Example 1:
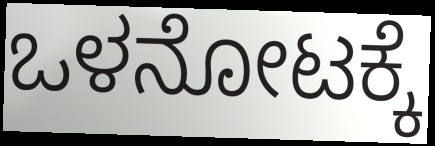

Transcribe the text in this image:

ಒಳನೋಟಕ್ಕೆ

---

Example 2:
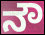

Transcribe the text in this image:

ನೌ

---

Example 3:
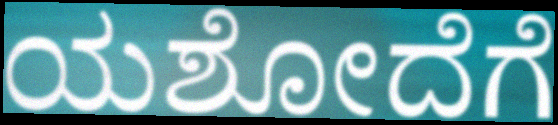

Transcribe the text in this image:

ಯಶೋದೆಗೆ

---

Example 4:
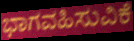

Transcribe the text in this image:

ಭಾಗವಹಿಸುವಿಕೆ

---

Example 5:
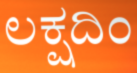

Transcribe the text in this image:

ಲಕ್ಷದಿಂ